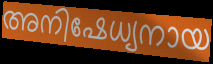
അനിഷേധ്യനായ